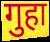
गुहा